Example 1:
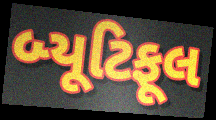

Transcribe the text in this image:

બ્યૂટિફૂલ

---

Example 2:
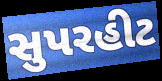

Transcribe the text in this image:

સુપરહીટ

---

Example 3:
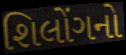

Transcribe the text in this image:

શિલોંગનો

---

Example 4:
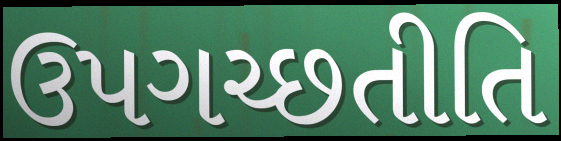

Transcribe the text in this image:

ઉપગચ્છતીતિ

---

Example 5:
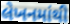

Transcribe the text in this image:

લેખનમાંથી